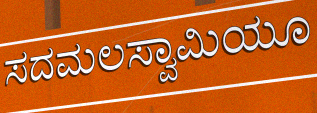
ಸದಮಲಸ್ವಾಮಿಯೂ